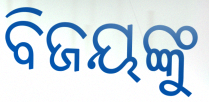
ବିଜୟଙ୍କୁ